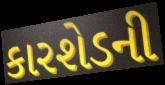
કારશેડની